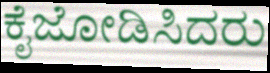
ಕೈಜೋಡಿಸಿದರು